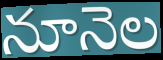
నూనెల